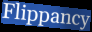
Flippancy